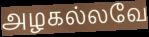
அழகல்லவே